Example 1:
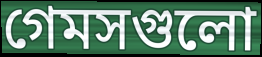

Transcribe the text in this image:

গেমসগুলো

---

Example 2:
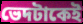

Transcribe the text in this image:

ভেদটাকেই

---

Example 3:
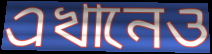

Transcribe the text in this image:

এখানেও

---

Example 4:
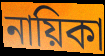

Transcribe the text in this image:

নায়িকা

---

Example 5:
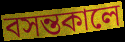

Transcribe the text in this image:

বসন্তকালে